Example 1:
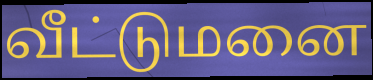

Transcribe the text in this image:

வீட்டுமனை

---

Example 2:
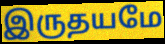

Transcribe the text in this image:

இருதயமே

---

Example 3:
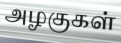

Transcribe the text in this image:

அழகுகள்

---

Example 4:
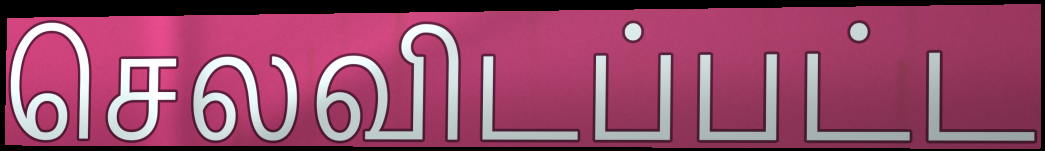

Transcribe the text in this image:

செலவிடப்பட்ட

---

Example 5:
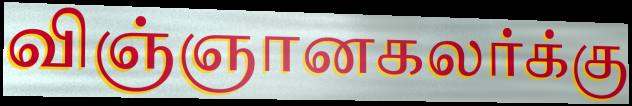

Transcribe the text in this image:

விஞ்ஞானகலர்க்கு